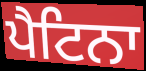
ਪੈਟਿਨਾ